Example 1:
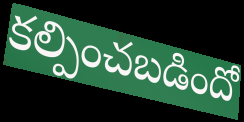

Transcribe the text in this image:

కల్పించబడిందో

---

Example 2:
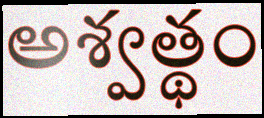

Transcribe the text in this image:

అశ్వత్థం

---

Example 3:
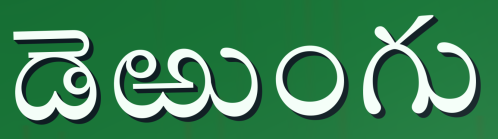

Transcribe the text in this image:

డెఱుంగు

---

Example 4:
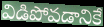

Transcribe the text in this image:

విడిపోవడానికే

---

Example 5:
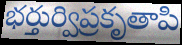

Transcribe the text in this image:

భర్తుర్విప్రకృతాపి